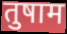
तुषाम